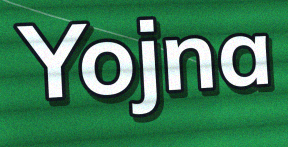
Yojna